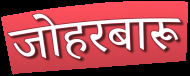
जोहरबारू